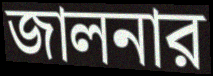
জালনার